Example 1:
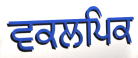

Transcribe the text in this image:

ਵਕਲਪਿਕ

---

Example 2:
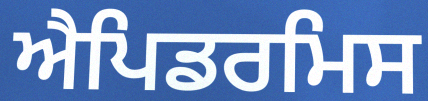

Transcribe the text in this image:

ਐਪਿਡਰਮਿਸ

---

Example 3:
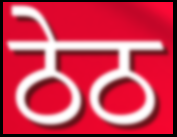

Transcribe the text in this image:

ਠੇਠ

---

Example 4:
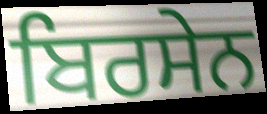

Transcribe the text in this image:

ਬਿਰਸੇਨ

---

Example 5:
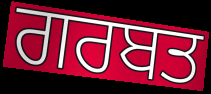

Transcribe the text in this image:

ਗਰਬਤ